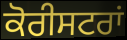
ਕੋਰੀਸਟਰਾਂ